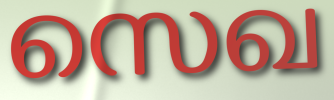
സെഖ